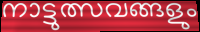
നാട്ടുത്സവങ്ങളും